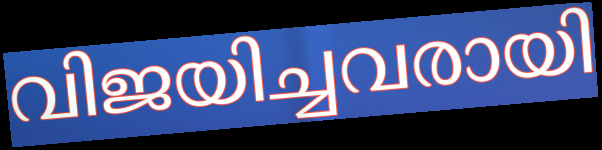
വിജയിച്ചവരായി